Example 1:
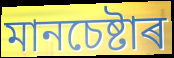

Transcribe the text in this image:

মানচেষ্টাৰ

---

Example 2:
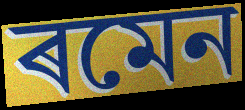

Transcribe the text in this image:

ৰমেন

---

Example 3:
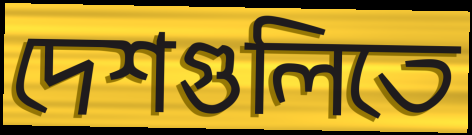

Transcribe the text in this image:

দেশগুলিতে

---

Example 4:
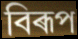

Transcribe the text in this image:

বিৰূপ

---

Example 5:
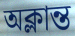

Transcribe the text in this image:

অক্লান্ত